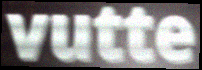
vutte